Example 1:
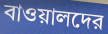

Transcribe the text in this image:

বাওয়ালদের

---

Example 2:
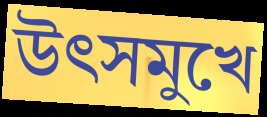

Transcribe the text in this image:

উৎসমুখে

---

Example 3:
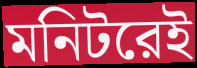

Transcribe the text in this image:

মনিটরেই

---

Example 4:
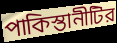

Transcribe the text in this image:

পাকিস্তানীটির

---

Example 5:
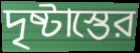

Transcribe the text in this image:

দৃষ্টাস্তের